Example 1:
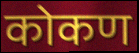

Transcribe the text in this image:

कोकण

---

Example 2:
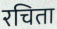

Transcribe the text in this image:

रचिता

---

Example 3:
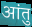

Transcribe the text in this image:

आंतु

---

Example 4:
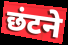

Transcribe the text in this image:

छंटने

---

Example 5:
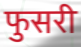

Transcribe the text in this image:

फुसरी